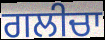
ਗਲੀਚਾ